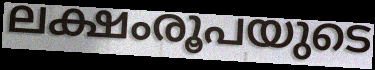
ലക്ഷംരൂപയുടെ